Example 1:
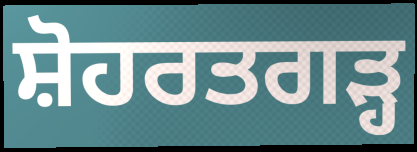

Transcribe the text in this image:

ਸ਼ੋਹਰਤਗੜ੍ਹ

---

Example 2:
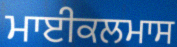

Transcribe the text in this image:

ਮਾਈਕਲਮਾਸ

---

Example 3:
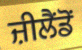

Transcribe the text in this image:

ਜ਼ੀਲੈਂਡੋਂ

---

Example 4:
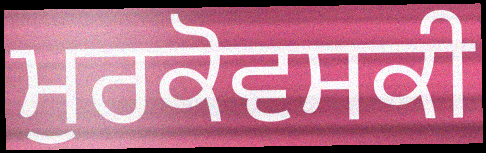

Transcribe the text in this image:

ਮੁਰਕੋਵਸਕੀ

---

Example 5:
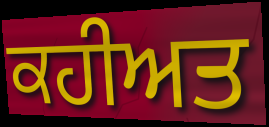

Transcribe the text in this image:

ਕਹੀਅਤ